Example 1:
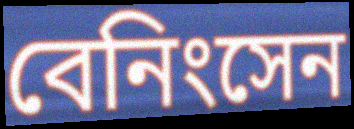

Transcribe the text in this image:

বেনিংসেন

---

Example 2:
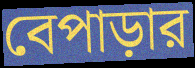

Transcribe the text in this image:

বেপাড়ার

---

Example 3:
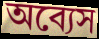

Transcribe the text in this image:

অব্যেস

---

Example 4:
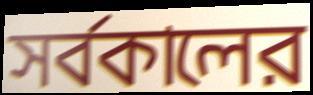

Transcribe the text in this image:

সর্বকালের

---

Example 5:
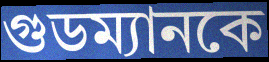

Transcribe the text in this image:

গুডম্যানকে